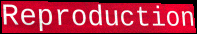
Reproduction